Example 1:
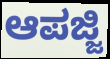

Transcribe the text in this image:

ಆಪಜ್ಜಿ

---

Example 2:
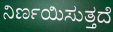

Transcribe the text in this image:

ನಿರ್ಣಯಿಸುತ್ತದೆ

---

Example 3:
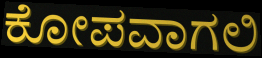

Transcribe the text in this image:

ಕೋಪವಾಗಲಿ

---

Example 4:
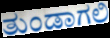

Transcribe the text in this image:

ತುಂಡಾಗಲಿ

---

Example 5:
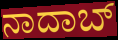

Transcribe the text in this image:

ನಾದಾಬ್